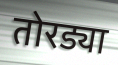
तोरड्या